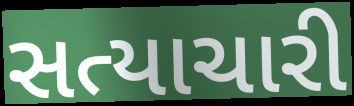
સત્યાચારી